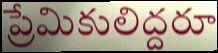
ప్రేమికులిద్దరూ